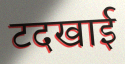
टदखाई